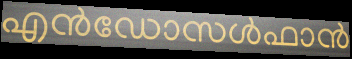
എൻഡോസൾഫാൻ